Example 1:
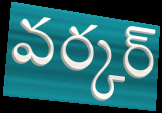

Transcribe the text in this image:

వర్కర్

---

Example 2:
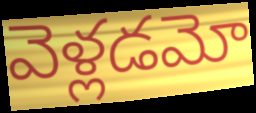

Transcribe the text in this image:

వెళ్లడమో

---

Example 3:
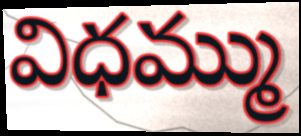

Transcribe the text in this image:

విధమ్ము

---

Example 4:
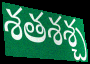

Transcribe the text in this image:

శతశశ్చ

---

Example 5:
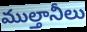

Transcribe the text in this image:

ముల్తానీలు